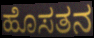
ಹೊಸತನ